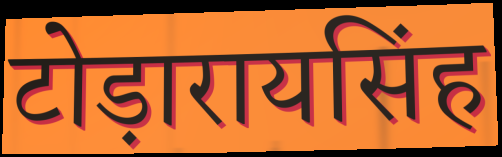
टोड़ारायसिंह